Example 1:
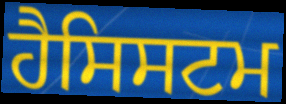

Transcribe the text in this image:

ਹੈਸਿਸਟਮ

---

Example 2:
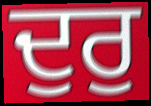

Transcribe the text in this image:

ਦੁਰੁ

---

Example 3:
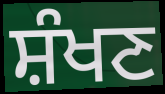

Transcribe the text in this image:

ਸ਼ੰਖਣ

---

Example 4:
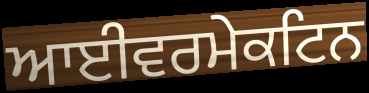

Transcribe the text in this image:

ਆਈਵਰਮੇਕਟਿਨ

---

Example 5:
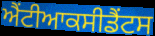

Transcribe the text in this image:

ਐਂਟੀਆਕਸੀਡੈਂਟਸ